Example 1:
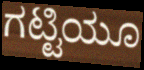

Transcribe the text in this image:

ಗಟ್ಟಿಯೂ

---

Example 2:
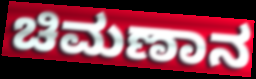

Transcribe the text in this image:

ಚಿಮಣಾನ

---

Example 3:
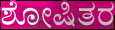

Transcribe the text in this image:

ಶೋಷಿತರ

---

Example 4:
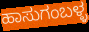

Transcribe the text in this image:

ಹಾಸುಗಂಬಳ್ಳ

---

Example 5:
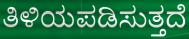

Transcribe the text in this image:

ತಿಳಿಯಪಡಿಸುತ್ತದೆ